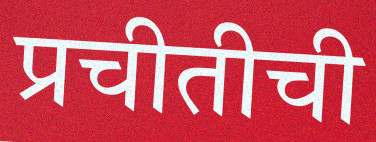
प्रचीतीची